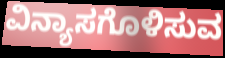
ವಿನ್ಯಾಸಗೊಳಿಸುವ